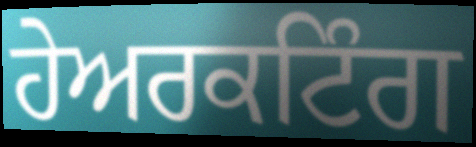
ਹੇਅਰਕਟਿੰਗ